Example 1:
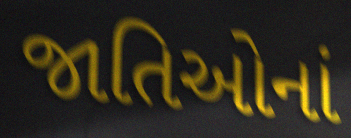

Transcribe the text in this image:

જાતિઓનાં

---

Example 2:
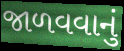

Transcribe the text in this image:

જાળવવાનું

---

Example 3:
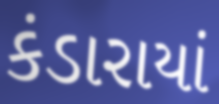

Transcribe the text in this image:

કંડારાયાં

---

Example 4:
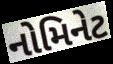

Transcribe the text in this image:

નોમિનેટ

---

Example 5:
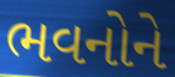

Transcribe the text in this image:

ભવનોને